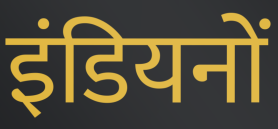
इंडियनों